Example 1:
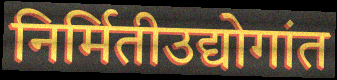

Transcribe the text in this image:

निर्मितीउद्योगांत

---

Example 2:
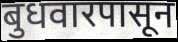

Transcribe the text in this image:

बुधवारपासून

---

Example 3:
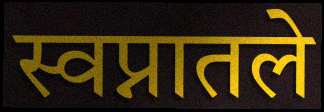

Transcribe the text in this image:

स्वप्नातले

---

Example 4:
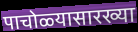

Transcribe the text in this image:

पाचोळ्यासारख्या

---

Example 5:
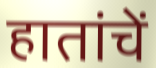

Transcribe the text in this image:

हातांचें